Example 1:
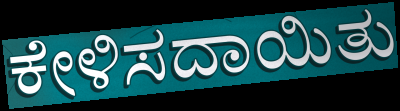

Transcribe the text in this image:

ಕೇಳಿಸದಾಯಿತು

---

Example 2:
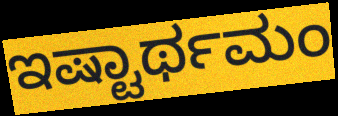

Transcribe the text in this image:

ಇಷ್ಟಾರ್ಥಮಂ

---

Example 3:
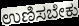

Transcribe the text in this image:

ಉಣಿಸಬೇಕು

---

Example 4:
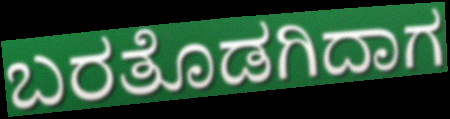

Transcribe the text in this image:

ಬರತೊಡಗಿದಾಗ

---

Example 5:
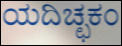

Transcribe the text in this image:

ಯದಿಚ್ಛಕಂ